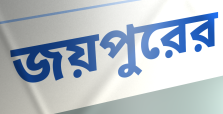
জয়পুরের